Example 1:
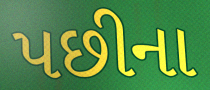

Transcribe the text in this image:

પછીના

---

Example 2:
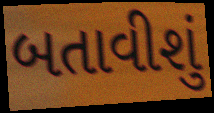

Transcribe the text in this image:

બતાવીશું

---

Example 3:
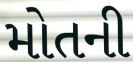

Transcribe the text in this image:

મોતની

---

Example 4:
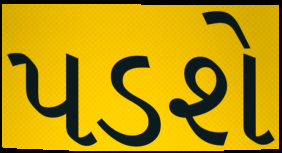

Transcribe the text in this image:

પડશે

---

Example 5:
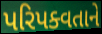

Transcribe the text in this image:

પરિપક્વતાને